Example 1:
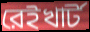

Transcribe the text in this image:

রেইখার্ট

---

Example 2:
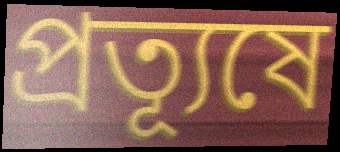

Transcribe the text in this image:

প্রত্যূষে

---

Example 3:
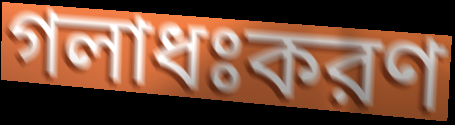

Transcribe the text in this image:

গলাধঃকরণ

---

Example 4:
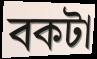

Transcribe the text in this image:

বকটা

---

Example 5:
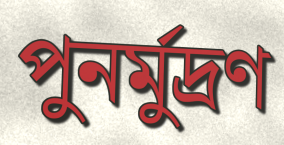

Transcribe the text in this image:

পুনর্মুদ্রণ